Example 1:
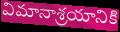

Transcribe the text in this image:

విమానాశ్రయానికి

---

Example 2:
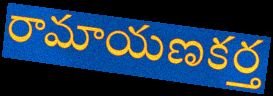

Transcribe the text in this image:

రామాయణకర్త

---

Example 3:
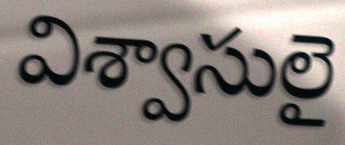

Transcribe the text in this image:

విశ్వాసులై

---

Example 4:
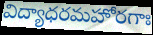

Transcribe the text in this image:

విద్యాధరమహోరగాః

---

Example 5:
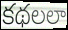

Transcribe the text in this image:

కథలలా